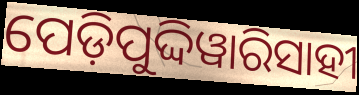
ପେଡ଼ିପୁଦ୍ଦିୱାରିସାହୀ